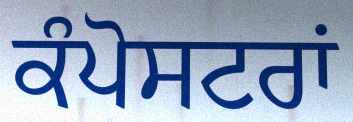
ਕੰਪੋਸਟਰਾਂ